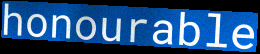
honourable